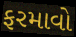
ફરમાવો